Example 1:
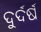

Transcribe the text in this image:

ଦୁର୍ଦର୍ଷ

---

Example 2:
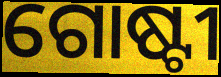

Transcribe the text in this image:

ଗୋଷ୍ଟୀ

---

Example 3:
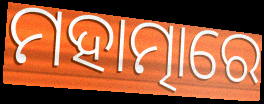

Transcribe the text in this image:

ମହାତ୍ମାରେ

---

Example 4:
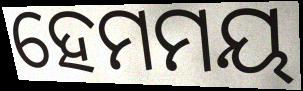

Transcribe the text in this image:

ହେମମୟ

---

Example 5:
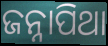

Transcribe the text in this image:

ଜନ୍ନାପିଥା